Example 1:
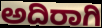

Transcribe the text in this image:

ಅದಿರಾಗಿ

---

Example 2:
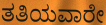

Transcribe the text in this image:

ತತಿಯವಾರೇ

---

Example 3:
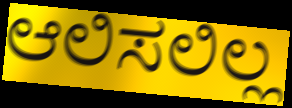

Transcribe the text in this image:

ಆಲಿಸಲಿಲ್ಲ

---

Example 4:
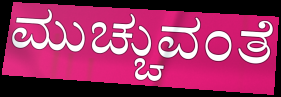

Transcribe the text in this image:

ಮುಚ್ಚುವಂತೆ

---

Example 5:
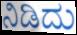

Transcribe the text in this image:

ನಿಡಿದು